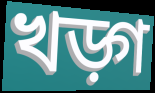
খড়্গ